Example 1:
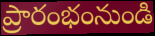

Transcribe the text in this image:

ప్రారంభంనుండి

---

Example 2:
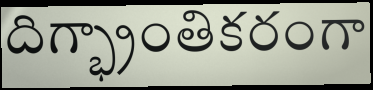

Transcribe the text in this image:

దిగ్భ్రాంతికరంగా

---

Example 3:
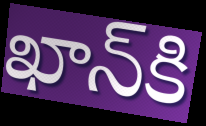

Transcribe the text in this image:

ఖాన్‌కి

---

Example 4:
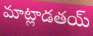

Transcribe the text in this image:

మాట్లాడతయ్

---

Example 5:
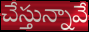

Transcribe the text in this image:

చేస్తున్నావే